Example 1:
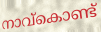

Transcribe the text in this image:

നാവ്കൊണ്ട്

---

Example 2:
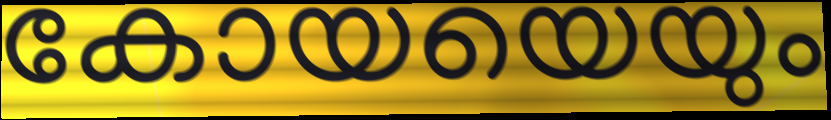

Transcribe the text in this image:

കോയയെയും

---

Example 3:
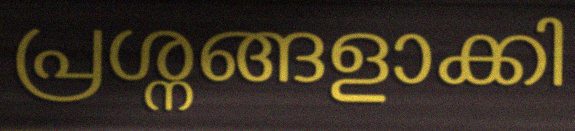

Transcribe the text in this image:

പ്രശ്നങ്ങളാക്കി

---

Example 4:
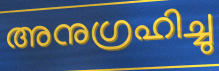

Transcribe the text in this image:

അനുഗ്രഹിച്ചു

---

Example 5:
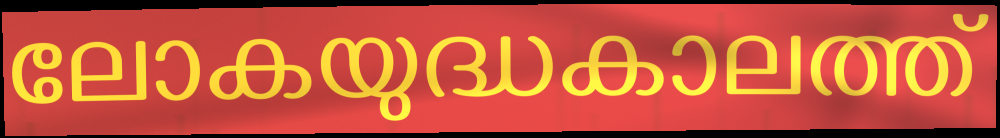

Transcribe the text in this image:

ലോകയുദ്ധകാലത്ത്